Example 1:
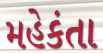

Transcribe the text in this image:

મહેકંતા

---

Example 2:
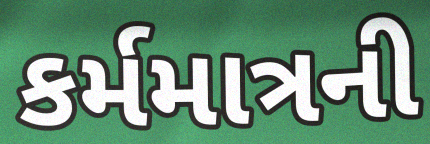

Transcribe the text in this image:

કર્મમાત્રની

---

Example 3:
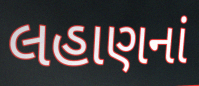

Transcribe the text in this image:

લહાણનાં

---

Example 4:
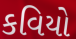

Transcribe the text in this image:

કવિયો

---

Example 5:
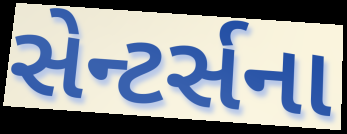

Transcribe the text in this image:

સેન્ટર્સના